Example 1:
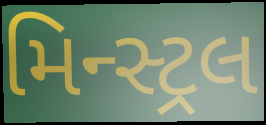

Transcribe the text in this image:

મિન્સ્ટ્રલ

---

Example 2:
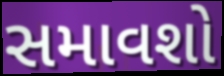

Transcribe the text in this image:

સમાવશો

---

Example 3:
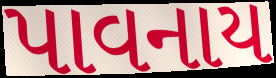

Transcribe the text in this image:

પાવનાય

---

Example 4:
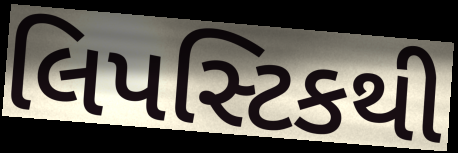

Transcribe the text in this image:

લિપસ્ટિકથી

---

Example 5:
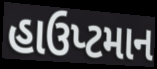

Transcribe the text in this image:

હાઉપ્ટમાન